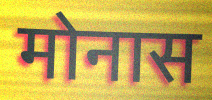
मोनास